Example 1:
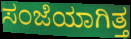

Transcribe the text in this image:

ಸಂಜೆಯಾಗಿತ್ತ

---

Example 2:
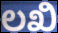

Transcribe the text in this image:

ಲಖಿ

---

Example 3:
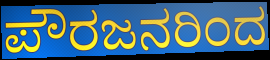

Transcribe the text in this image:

ಪೌರಜನರಿಂದ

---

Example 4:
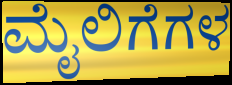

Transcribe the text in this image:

ಮೈಲಿಗೆಗಳ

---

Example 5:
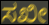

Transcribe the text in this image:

ಸಖೀ